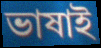
ভাষাই